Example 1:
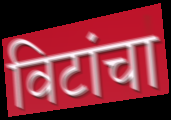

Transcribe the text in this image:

विटांचा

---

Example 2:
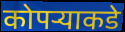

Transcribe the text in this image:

कोपऱ्याकडे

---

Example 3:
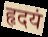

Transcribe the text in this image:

हृदयं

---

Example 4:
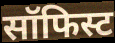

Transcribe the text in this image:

सॉफिस्ट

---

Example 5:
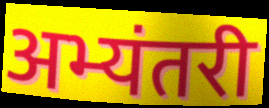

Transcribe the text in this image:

अभ्यंतरी